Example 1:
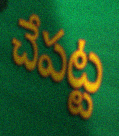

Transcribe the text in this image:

చేపట్ట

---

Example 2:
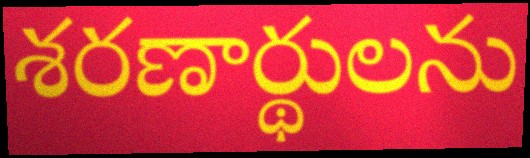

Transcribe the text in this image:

శరణార్థులను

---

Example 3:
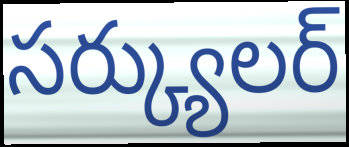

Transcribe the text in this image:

సర్క్యులర్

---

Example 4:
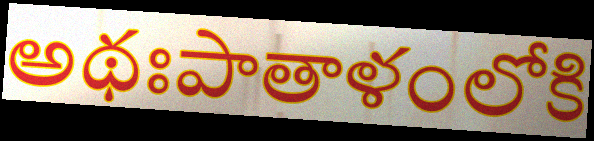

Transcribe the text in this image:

అథఃపాతాళంలోకి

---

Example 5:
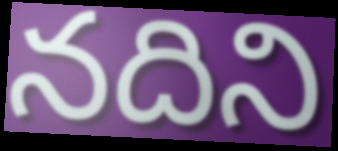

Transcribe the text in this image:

నదిని